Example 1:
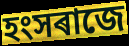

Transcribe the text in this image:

হংসৰাজে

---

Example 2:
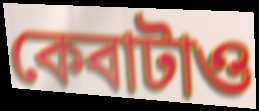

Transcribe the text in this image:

কেবাটাও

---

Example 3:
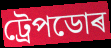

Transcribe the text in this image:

ট্ৰেপডোৰ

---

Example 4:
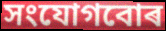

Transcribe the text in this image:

সংযোগবোৰ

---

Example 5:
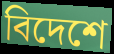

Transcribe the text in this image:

বিদেশে